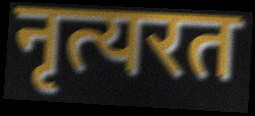
नृत्यरत